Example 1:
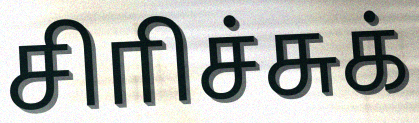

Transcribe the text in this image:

சிரிச்சுக்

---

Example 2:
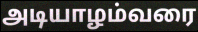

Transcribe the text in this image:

அடியாழம்வரை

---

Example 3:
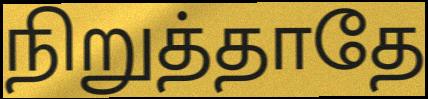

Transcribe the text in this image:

நிறுத்தாதே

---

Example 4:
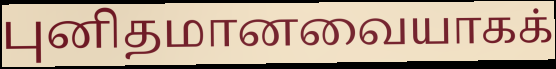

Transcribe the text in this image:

புனிதமானவையாகக்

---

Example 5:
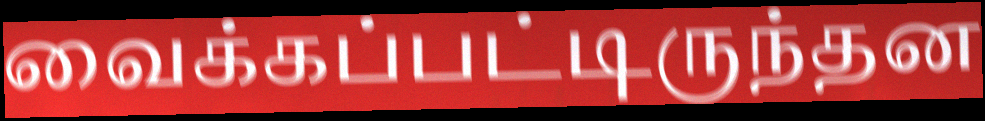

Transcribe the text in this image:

வைக்கப்பட்டிருந்தன